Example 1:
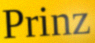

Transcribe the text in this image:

Prinz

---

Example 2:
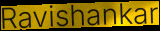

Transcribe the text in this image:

Ravishankar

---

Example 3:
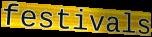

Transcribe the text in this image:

festivals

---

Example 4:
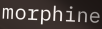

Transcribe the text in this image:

morphine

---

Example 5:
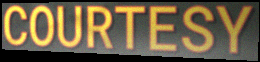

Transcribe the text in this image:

COURTESY